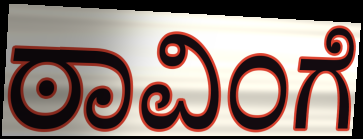
ಠಾವಿಂಗೆ